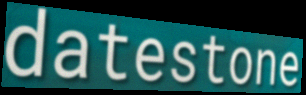
datestone